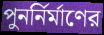
পুনর্নির্মাণের